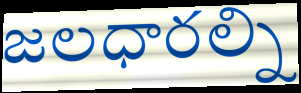
జలధారల్ని